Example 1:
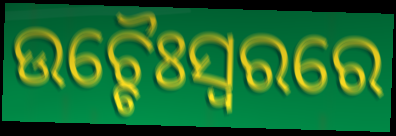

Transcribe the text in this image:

ଉଚ୍ଚୈଃସ୍ୱରରେ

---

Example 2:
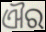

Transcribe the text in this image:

ଐର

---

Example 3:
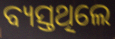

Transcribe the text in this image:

ବ୍ୟସ୍ତଥିଲେ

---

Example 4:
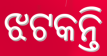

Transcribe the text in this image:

ଝଟକନ୍ତି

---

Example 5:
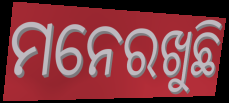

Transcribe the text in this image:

ମନେରଖୁଛି